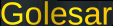
Golesar